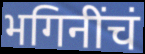
भगिनींचं